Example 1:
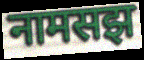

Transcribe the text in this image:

नामसझ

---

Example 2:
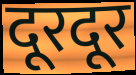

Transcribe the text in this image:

दूरदूर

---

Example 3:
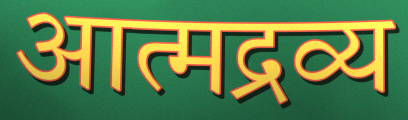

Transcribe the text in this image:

आत्मद्रव्य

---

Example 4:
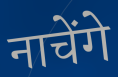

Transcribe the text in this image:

नाचेंगे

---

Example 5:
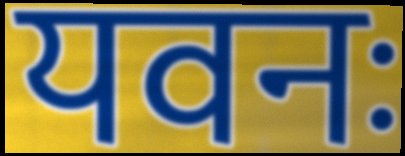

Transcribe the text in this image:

यवनः